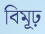
বিমূঢ়